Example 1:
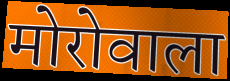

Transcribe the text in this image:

मोरोवाला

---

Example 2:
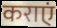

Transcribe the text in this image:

कराएं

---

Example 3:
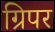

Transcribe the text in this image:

ग्रिपर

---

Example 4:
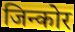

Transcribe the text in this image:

जिन्कोर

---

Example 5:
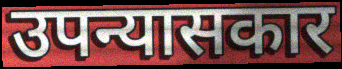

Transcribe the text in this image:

उपन्यासकार